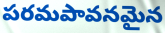
పరమపావనమైన